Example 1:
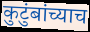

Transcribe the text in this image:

कुटुंबांच्याच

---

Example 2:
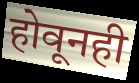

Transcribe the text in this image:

होवूनही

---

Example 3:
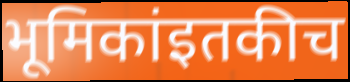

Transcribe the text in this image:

भूमिकांइतकीच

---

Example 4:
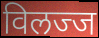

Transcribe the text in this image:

विलज्ज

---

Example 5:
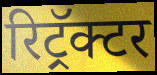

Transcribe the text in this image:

रिट्रॅक्टर